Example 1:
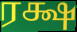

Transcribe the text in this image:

ரக்ஷ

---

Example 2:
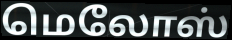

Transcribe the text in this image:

மெலோஸ்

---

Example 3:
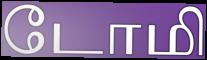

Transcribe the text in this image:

டோமி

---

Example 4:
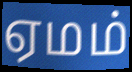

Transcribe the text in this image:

ஏமம்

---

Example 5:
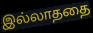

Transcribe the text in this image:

இல்லாததை